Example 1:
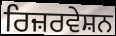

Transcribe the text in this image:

ਰਿਜ਼ਰਵੇਸ਼ਨ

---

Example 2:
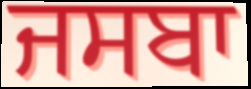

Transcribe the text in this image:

ਜਸਬਾ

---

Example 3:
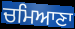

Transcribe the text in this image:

ਚਮਿਆਣਾ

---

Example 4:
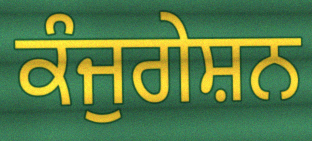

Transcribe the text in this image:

ਕੰਜੁਗੇਸ਼ਨ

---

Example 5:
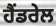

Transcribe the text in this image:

ਹੈਂਡਰੇਲ